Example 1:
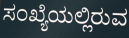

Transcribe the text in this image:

ಸಂಖ್ಯೆಯಲ್ಲಿರುವ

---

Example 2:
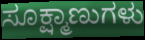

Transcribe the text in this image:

ಸೂಕ್ಷ್ಮಾಣುಗಳು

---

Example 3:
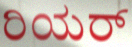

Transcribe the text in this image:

ರಿಯರ್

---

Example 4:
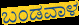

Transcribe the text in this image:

ಬಂಡವಾಳ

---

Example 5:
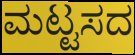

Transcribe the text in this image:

ಮಟ್ಟಸದ